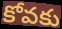
కోవకు